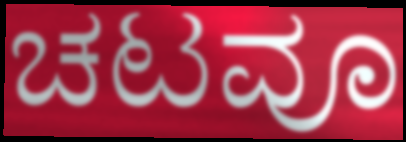
ಚಟವೂ